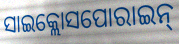
ସାଇକ୍ଲୋସପୋରାଇନ୍